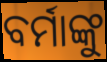
ବର୍ମାଙ୍କୁ